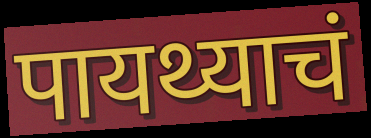
पायथ्याचं